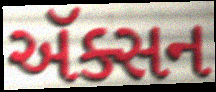
ઍક્સન